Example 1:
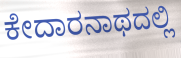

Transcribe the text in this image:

ಕೇದಾರನಾಥದಲ್ಲಿ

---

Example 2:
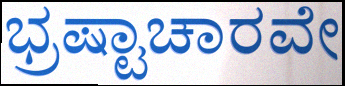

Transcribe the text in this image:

ಭ್ರಷ್ಟಾಚಾರವೇ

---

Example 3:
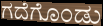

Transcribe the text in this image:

ಗದೆಗೊಂಡು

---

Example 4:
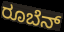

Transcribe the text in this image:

ರೂಬೆನ್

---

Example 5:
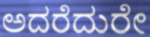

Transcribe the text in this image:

ಅದರೆದುರೇ